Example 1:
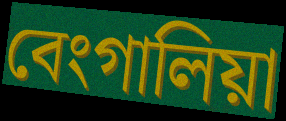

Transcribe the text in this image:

বেংগালিয়া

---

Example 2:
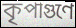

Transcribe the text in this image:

কৃপাগুণে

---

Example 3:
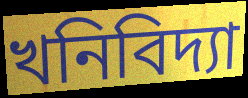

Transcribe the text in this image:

খনিবিদ্যা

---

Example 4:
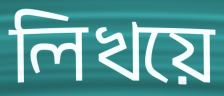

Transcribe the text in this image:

লিখয়ে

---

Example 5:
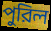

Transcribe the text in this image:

পুরিল